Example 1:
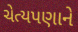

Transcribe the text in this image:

ચેત્યપણાને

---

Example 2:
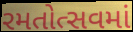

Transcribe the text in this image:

રમતોત્સવમાં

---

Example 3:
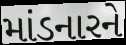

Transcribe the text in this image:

માંડનારને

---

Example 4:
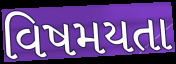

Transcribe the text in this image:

વિષમયતા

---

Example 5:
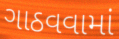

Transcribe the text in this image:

ગાઠવવામાં